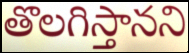
తొలగిస్తానని